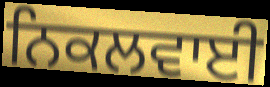
ਨਿਕਲਵਾਈ